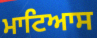
ਮਾਟਿਆਸ